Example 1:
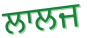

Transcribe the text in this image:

ਲਾਲਜ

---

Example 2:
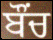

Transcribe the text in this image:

ਬੌਂਚ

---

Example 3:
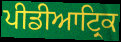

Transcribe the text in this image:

ਪੀਡੀਆਟ੍ਰਿਕ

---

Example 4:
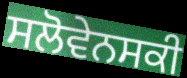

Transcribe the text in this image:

ਸਲੋਵੇਨਸਕੀ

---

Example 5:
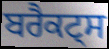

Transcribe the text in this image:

ਬਰੈਕਟ੍ਸ